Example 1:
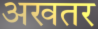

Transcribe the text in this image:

अखतर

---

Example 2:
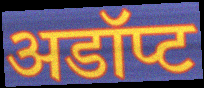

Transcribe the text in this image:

अडॉप्‍ट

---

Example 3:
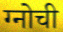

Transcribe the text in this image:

ग्नोची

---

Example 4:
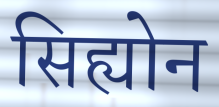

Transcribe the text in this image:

सिह्योन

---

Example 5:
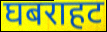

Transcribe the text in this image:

घबराहट